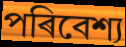
পৰিবেশ্য